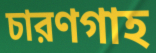
চারণগাহ